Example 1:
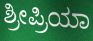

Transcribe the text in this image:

ಶ್ರೀಪ್ರಿಯಾ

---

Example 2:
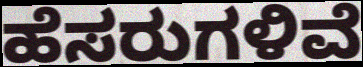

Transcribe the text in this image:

ಹೆಸರುಗಳಿವೆ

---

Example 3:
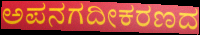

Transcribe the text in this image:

ಅಪನಗದೀಕರಣದ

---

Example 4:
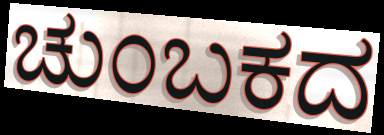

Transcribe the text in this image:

ಚುಂಬಕದ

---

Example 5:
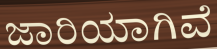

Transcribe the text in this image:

ಜಾರಿಯಾಗಿವೆ